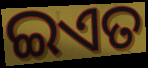
ଇଏତ